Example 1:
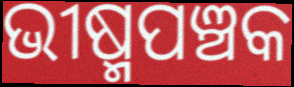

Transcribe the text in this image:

ଭୀଷ୍ମପଞ୍ଚକ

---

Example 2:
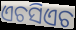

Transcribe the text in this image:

ଏଚସିଏଚ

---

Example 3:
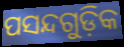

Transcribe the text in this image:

ପସନ୍ଦଗୁଡ଼ିକ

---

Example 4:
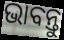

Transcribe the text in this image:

ଭାବନ୍ତୁ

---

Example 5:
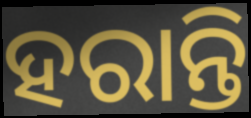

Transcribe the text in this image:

ହରାନ୍ତି